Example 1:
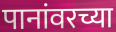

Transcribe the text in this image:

पानांवरच्या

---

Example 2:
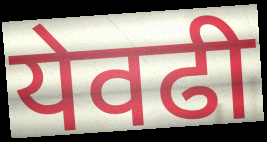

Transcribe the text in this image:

येवढी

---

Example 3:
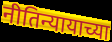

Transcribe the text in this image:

नीतिन्यायाच्या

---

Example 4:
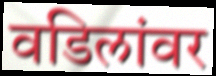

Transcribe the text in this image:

वडिलांवर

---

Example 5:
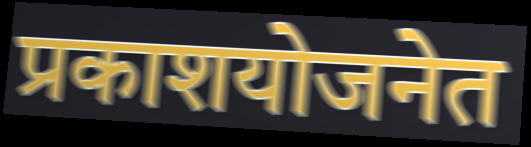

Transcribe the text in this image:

प्रकाशयोजनेत